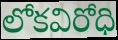
లోకవిరోధి